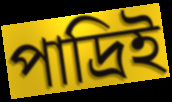
পাদ্রিই